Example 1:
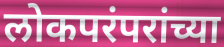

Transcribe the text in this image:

लोकपरंपरांच्या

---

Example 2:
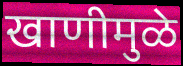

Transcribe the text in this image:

खाणीमुळे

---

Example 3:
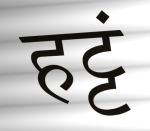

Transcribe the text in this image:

हट्टं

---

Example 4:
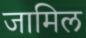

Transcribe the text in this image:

जामिल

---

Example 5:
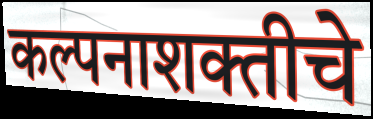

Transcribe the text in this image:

कल्पनाशक्तीचे